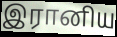
இரானிய